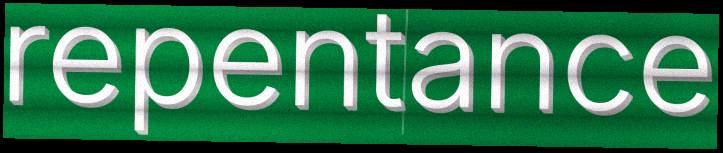
repentance